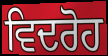
ਵਿਦਰੋਹ